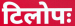
टिलोपः